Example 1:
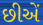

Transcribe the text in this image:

છીએં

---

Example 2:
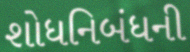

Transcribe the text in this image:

શોધનિબંધની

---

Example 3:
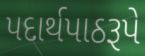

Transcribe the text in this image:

પદાર્થપાઠરૂપે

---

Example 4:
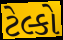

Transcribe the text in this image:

ટેલ્કો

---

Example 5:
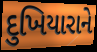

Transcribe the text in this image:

દુખિયારાને